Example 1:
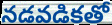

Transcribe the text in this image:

నడవడికతో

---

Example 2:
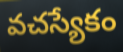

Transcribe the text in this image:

వచస్యేకం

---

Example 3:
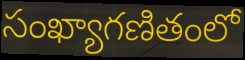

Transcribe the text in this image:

సంఖ్యాగణితంలో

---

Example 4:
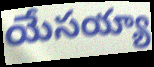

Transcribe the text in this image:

యేసయ్యా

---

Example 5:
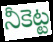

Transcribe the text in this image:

నీకెట్ట